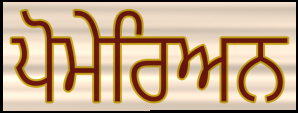
ਪੋਮੇਰਿਅਨ